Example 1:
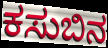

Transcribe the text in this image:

ಕಸುಬಿನ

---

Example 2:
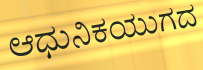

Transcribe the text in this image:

ಆಧುನಿಕಯುಗದ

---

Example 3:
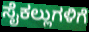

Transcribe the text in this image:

ಸೈಕಲ್ಲುಗಳಿಗೆ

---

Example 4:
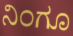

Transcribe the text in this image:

ನಿಂಗೂ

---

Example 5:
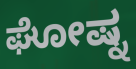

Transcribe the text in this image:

ಘೋಷ್ನ